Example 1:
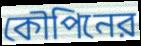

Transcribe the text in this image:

কৌপিনের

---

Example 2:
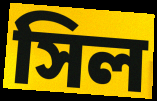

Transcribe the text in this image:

সিল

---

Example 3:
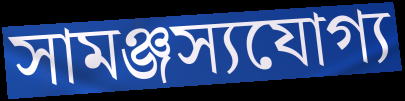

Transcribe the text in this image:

সামঞ্জস্যযোগ্য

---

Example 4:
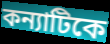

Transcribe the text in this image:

কন্যাটিকে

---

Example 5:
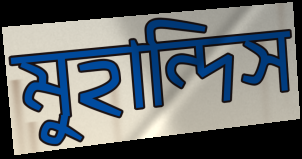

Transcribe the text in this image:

মুহান্দিস